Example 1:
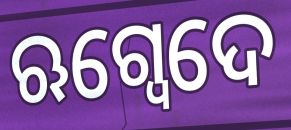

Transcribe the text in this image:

ଋଗ୍ଵେଦେ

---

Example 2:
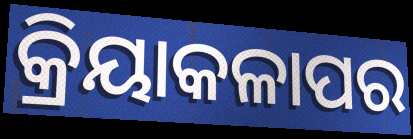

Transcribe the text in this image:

କ୍ରିୟାକଳାପର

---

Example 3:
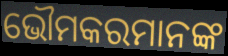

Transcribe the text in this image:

ଭୌମକରମାନଙ୍କ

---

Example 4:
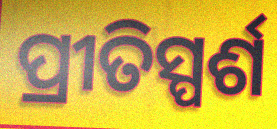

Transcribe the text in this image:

ପ୍ରୀତିସ୍ପର୍ଶ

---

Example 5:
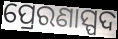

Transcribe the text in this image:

ପ୍ରେରଣାସ୍ପଦ